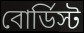
বোর্ডিস্ট